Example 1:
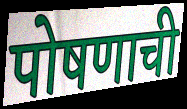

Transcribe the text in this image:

पोषणाची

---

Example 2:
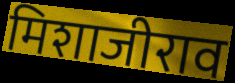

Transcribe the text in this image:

मिशाजीराव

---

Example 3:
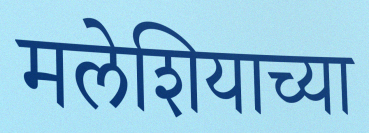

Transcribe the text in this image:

मलेशियाच्या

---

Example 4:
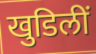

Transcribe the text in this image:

खुडिलीं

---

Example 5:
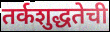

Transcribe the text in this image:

तर्कशुद्धतेची